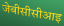
जेबीसीसीआइ